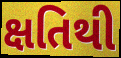
ક્ષતિથી